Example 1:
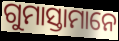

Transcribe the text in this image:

ଗୁମାସ୍ତାମାନେ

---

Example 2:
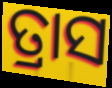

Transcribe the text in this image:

ତ୍ରାସ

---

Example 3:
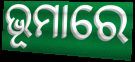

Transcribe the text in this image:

ଭୂମାରେ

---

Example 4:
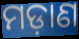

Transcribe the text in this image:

ମଡ଼ାଣ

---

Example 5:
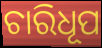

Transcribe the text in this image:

ଚାରିଧୂପ